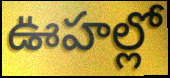
ఊహల్లో